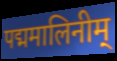
पद्ममालिनीम्